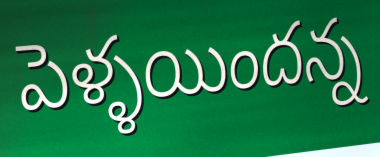
పెళ్ళయిందన్న